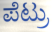
ಪೆಟ್ರು